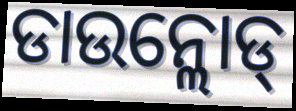
ଡାଉନ୍ଲୋଡ୍